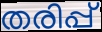
തരിപ്പ്